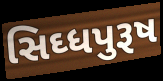
સિઘ્ધપુરૂષ